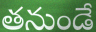
తనుండే